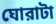
ঘোরাটা